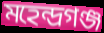
মহেন্দ্রগঞ্জ